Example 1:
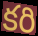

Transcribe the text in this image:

కరి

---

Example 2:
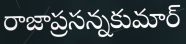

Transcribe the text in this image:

రాజాప్రసన్నకుమార్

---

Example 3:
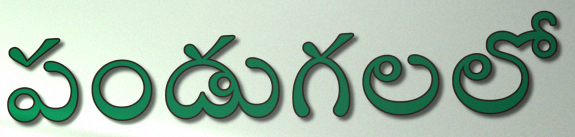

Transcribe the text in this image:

పండుగలలో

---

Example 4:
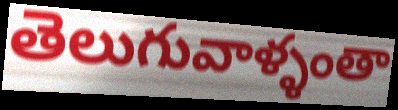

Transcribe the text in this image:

తెలుగువాళ్ళంతా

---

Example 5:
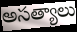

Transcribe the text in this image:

అసత్యాలు